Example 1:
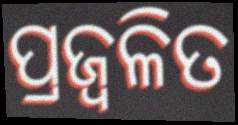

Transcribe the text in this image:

ପ୍ରଜ୍ୱଳିତ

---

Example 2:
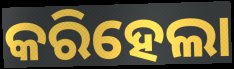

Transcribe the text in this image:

କରିହେଲା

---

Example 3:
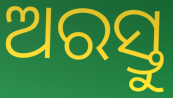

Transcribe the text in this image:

ଅରସ୍ତୁ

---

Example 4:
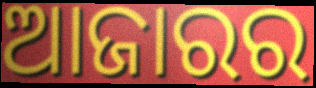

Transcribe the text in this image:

ଆଜାରର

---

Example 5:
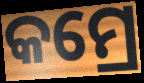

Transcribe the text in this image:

କମ୍ରେ